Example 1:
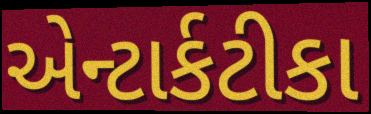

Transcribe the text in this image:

એન્ટાર્કટીકા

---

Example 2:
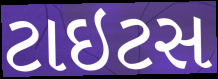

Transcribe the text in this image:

ટાઇટસ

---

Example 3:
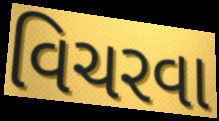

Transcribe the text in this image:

વિચરવા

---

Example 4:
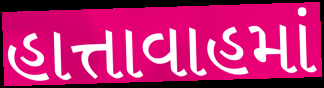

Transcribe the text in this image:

હાત્તાવાહમાં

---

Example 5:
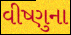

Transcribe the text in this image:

વીષ્ણુના